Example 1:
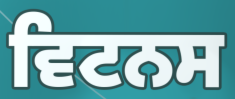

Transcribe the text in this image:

ਵਿਟਨਸ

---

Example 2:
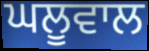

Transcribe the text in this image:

ਘਲੂਵਾਲ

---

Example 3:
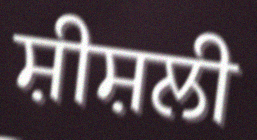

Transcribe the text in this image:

ਸ਼ੀਸ਼ਲੀ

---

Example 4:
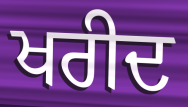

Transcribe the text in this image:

ਖਰੀਦ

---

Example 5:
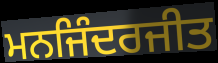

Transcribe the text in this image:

ਮਨਜਿੰਦਰਜੀਤ